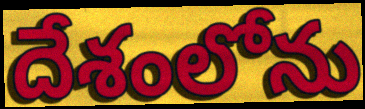
దేశంలోను